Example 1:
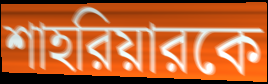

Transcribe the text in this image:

শাহরিয়ারকে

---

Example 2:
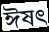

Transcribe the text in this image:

ঈষত্‍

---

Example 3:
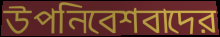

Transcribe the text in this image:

উপনিবেশবাদের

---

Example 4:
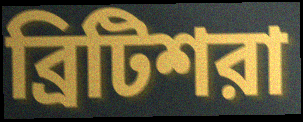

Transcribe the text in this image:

ব্রিটিশরা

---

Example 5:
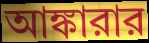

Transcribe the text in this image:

আঙ্কারার